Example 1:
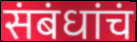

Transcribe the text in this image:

संबंधांचं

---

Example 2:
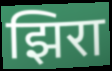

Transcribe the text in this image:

झिरा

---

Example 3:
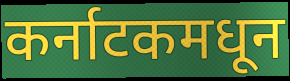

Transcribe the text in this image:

कर्नाटकमधून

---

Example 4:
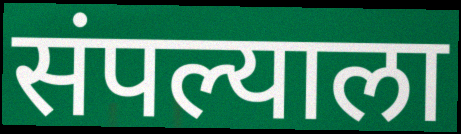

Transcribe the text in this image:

संपल्याला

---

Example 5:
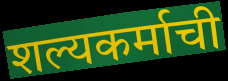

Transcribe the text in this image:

शल्यकर्माची